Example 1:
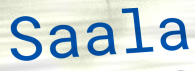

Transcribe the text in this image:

Saala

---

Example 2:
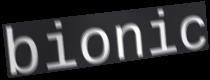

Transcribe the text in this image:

bionic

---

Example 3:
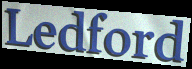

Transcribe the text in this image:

Ledford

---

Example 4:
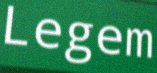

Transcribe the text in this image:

Legem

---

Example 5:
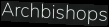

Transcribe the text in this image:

Archbishops